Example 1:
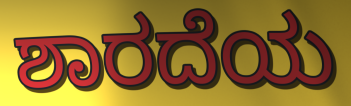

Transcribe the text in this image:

ಶಾರದೆಯ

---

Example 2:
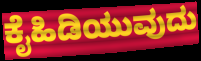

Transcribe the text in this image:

ಕೈಹಿಡಿಯುವುದು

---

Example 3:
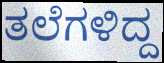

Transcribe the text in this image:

ತಲೆಗಳಿದ್ದ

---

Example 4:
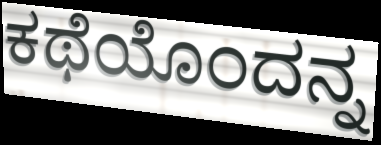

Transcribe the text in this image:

ಕಥೆಯೊಂದನ್ನ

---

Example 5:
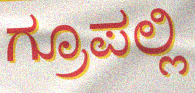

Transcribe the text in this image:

ಗ್ರೂಪಲ್ಲಿ